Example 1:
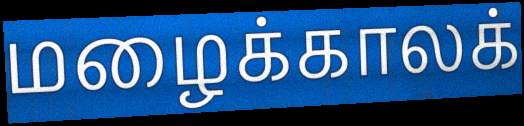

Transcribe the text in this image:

மழைக்காலக்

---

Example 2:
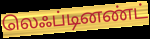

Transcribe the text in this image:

லெஃப்டினண்ட்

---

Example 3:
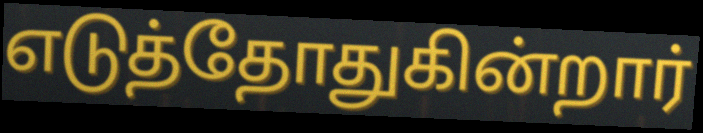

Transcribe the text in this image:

எடுத்தோதுகின்றார்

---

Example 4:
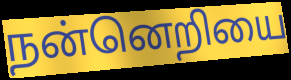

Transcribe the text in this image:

நன்னெறியை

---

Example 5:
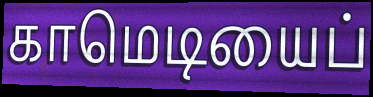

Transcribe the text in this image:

காமெடியைப்